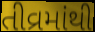
તીવ્રમાંથી